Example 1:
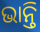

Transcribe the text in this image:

ଭାନ୍ତି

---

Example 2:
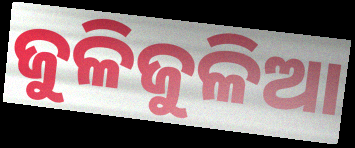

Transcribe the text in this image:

ଜୁଳିଜୁଳିଆ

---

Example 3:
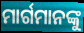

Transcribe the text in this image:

ମାର୍ଗମାନଙ୍କୁ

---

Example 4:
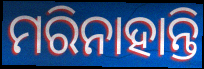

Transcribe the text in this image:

ମରିନାହାନ୍ତି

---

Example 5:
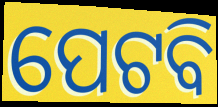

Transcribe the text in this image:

ପେଟବି